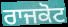
ਰਾਜਕੋਟ